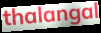
thalangal